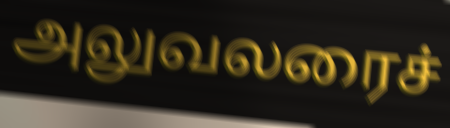
அலுவலரைச்